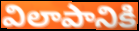
విలాపానికి